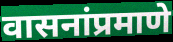
वासनांप्रमाणे